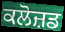
ਕਲੋਜ਼ਡ